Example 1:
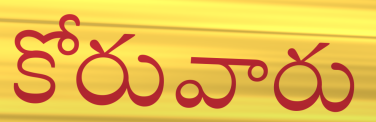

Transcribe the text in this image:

కోరువారు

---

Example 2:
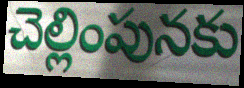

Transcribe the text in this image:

చెల్లింపునకు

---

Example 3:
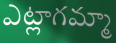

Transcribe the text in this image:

ఎట్లాగమ్మా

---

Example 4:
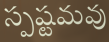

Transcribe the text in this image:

స్పష్టమవు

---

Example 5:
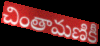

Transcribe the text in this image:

చింతామణికీ